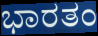
ಭಾರತಂ